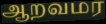
ஆறவமர